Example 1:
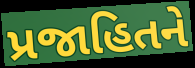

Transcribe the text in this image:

પ્રજાહિતને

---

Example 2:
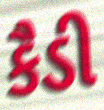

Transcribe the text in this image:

કૈડી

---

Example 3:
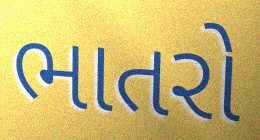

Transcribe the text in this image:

ભાતરો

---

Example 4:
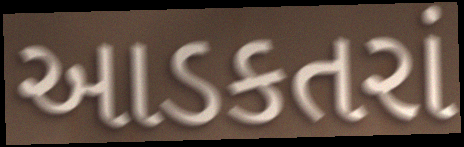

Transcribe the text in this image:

આડકતરાં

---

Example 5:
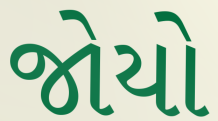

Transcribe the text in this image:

જોયો